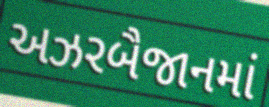
અઝરબૈજાનમાં